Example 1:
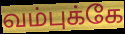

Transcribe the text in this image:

வம்புக்கே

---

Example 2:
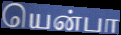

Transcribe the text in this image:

யென்பா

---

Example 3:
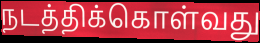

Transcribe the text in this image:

நடத்திக்கொள்வது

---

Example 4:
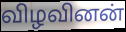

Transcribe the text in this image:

விழவினன்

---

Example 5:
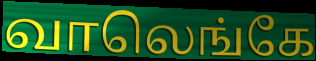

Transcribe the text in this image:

வாலெங்கே